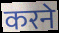
करने